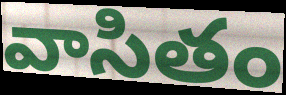
వాసితం